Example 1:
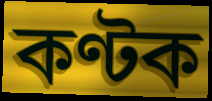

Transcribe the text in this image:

কণ্টক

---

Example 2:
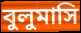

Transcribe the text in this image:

বুলুমাসি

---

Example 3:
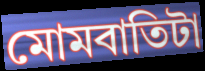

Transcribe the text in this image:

মোমবাতিটা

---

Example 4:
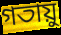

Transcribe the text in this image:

গতায়ু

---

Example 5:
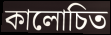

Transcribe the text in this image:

কালোচিত